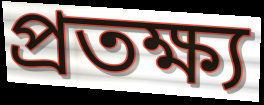
প্ৰতক্ষ্য